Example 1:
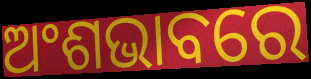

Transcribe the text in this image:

ଅଂଶଭାବରେ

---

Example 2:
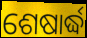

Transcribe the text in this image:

ଶେଷାର୍ଦ୍ଧ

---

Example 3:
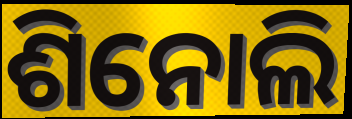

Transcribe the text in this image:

ଶିନୋଲି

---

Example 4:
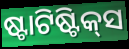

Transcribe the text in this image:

ଷ୍ଟାଟିଷ୍ଟିକ୍‍ସ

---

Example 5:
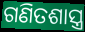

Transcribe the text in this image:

ଗଣିତଶାସ୍ତ୍ର